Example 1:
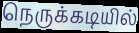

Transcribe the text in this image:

நெருக்கடியில்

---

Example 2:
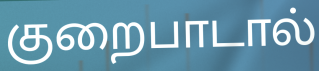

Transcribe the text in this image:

குறைபாடால்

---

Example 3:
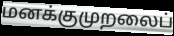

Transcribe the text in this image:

மனக்குமுறலைப்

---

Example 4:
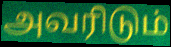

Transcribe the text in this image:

அவரிடும்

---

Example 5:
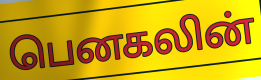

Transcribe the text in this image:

பெனகலின்